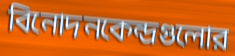
বিনোদনকেন্দ্রগুলোর